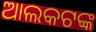
ଆଲକଟଙ୍କ